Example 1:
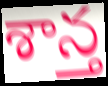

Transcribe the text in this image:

శాన్త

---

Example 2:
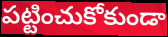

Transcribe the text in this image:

పట్టించుకోకుండా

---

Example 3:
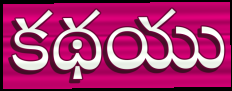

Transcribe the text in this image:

కథయు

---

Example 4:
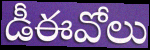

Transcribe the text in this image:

డీఈవోలు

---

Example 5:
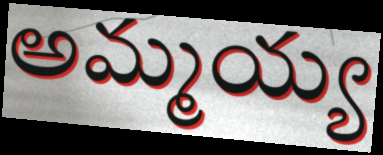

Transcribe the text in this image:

అమ్మయ్య